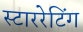
स्टाररेटिंग